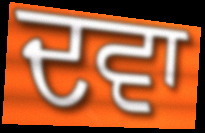
ਦਵਾ